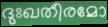
ദുഃഖതീരമോ